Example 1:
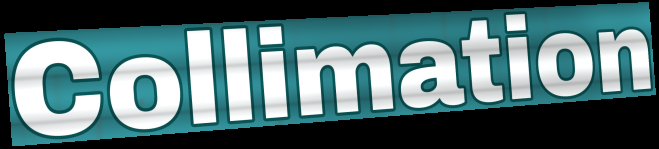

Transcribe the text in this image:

Collimation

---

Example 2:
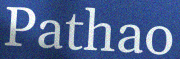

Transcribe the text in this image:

Pathao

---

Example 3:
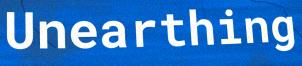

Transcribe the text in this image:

Unearthing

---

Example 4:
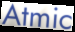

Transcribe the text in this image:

Atmic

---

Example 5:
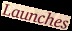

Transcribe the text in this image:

Launches